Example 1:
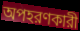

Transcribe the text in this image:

অপহরণকারী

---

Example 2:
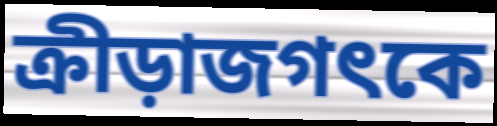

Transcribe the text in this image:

ক্রীড়াজগৎকে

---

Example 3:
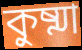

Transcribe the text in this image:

কুষ্মা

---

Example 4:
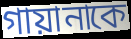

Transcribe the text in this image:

গায়ানাকে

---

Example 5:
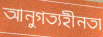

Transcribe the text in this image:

আনুগত্যহীনতা